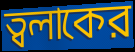
ত্বলাকের